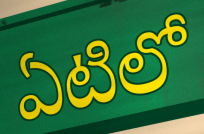
ఏటిలో